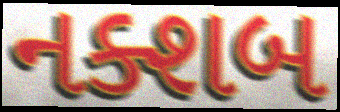
નક્શબ